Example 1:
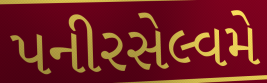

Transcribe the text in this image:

પનીરસેલ્વમે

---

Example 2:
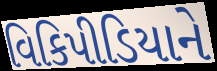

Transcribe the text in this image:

વિકિપીડિયાને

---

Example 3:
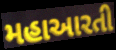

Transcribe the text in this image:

મહાઆરતી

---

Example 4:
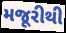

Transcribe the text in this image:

મજૂરીથી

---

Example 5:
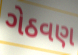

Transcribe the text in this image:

ગેઠવણ